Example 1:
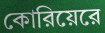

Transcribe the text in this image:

কোরিয়েরে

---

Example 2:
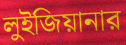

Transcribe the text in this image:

লুইজিয়ানার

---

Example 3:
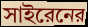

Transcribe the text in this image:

সাইরেনের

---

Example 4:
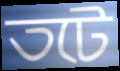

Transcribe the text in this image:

তটে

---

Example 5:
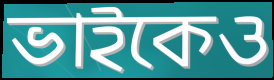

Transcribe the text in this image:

ভাইকেও